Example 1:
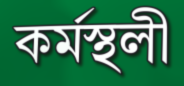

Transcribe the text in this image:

কৰ্মস্থলী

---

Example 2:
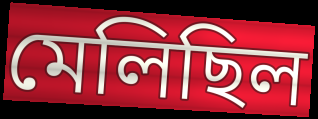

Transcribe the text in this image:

মেলিছিল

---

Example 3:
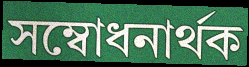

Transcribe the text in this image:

সম্বোধনাৰ্থক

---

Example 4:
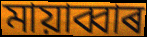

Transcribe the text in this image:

মায়াব্বাৰ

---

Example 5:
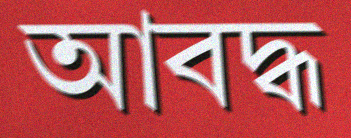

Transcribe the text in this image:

আবদ্ধ